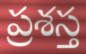
ప్రశస్త